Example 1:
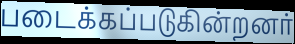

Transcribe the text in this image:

படைக்கப்படுகின்றனர்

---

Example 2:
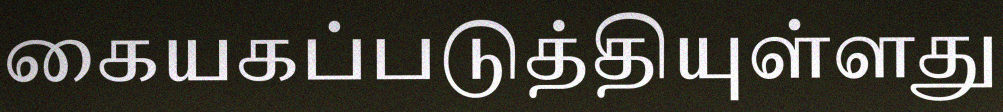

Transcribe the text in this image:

கையகப்படுத்தியுள்ளது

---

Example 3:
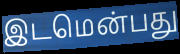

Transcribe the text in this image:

இடமென்பது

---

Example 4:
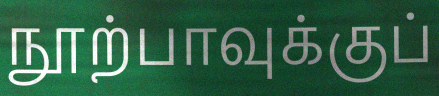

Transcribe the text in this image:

நூற்பாவுக்குப்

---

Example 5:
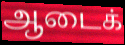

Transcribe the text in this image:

ஆடைக்